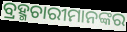
ବ୍ରହ୍ମଚାରୀମାନଙ୍କର